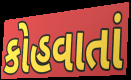
કોહવાતાં